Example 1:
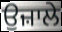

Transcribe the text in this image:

ਉਜ਼ਾਲੇ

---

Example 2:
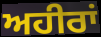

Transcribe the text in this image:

ਅਹੀਰਾਂ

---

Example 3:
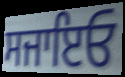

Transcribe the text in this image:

ਸਜਾਇਓ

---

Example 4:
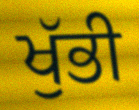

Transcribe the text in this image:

ਖੁੱਭੀ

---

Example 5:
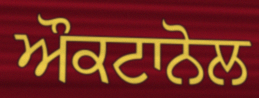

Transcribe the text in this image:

ਔਕਟਾਨੋਲ